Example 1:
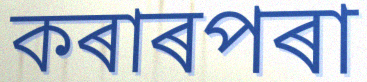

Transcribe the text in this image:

কৰাৰপৰা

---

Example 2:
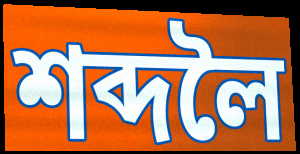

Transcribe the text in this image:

শব্দলৈ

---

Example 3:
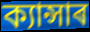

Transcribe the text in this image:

ক্যান্সাৰ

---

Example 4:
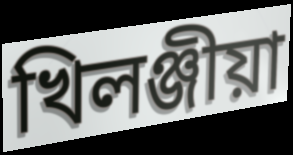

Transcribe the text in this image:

খিলঞ্জীয়া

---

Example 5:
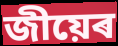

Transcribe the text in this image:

জীয়েৰ